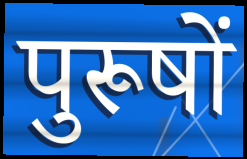
पुरूषों